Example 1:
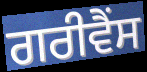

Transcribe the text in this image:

ਗਰੀਵੈਂਸ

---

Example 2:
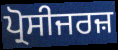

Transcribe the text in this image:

ਪ੍ਰੋਸੀਜਰਜ਼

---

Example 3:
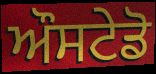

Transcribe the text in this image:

ਔਸਟੇਡੋ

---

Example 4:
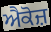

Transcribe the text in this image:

ਐਕੋਜ਼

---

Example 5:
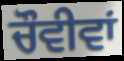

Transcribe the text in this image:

ਚੌਵੀਵਾਂ